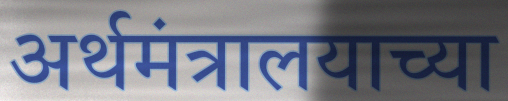
अर्थमंत्रालयाच्या